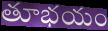
తూభయం